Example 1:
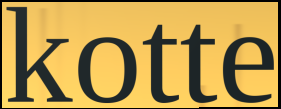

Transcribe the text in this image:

kotte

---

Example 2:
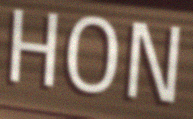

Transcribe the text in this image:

HON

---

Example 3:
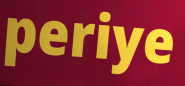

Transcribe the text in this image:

periye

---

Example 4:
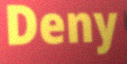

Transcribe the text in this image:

Deny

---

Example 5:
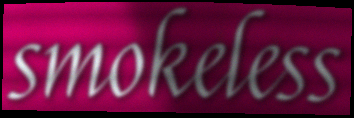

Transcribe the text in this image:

smokeless